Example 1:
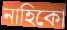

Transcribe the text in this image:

নাহিকো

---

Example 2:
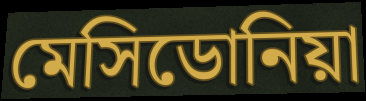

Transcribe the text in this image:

মেসিডোনিয়া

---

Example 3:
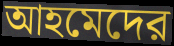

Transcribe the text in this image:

আহমেদের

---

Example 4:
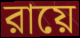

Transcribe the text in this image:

রায়ে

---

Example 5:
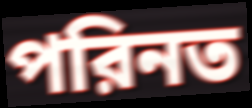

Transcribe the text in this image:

পরিনত